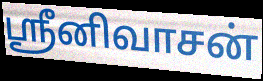
ஸ்ரீனிவாசன்